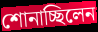
শোনাচ্ছিলেন